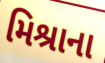
મિશ્રાના